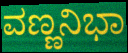
ವಣ್ಣನಿಭಾ